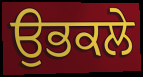
ਉਭਕਲੇ